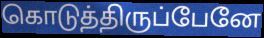
கொடுத்திருப்பேனே